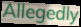
Allegedly